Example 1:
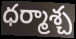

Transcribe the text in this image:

ధర్మాశ్చ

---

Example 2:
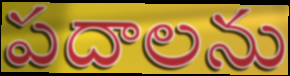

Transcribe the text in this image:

పదాలను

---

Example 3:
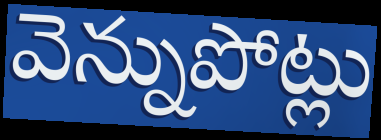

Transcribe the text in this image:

వెన్నుపోట్లు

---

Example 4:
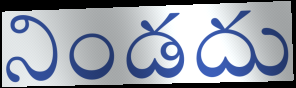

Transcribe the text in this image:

నిండదు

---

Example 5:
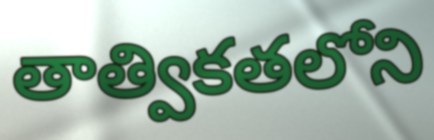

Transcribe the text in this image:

తాత్వికతలోని